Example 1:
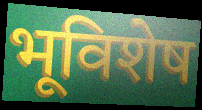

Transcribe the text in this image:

भूविशेष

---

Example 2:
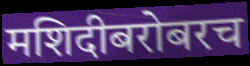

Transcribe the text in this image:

मशिदीबरोबरच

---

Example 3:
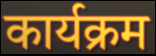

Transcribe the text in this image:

कार्यक्रम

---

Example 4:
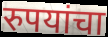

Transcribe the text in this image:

रुपयांचा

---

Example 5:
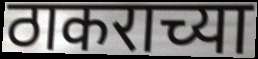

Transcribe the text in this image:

ठाकराच्या